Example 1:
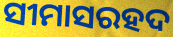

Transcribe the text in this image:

ସୀମାସରହଦ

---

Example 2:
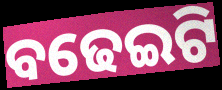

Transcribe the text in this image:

ବଢେଇଟି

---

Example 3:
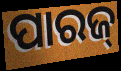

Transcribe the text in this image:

ପାରଜ୍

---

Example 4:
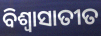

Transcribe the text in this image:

ବିଶ୍ୱାସାତୀତ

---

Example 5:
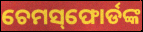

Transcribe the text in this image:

ଚେମସ୍‌ଫୋର୍ଡଙ୍କ